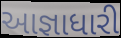
આજ્ઞાધારી